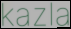
kazla